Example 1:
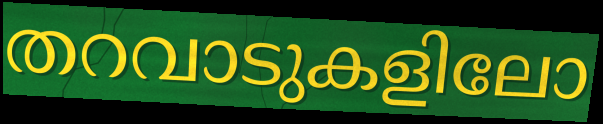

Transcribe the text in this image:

തറവാടുകളിലോ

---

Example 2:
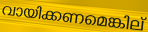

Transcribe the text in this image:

വായിക്കണമെങ്കില്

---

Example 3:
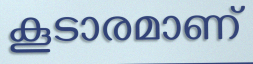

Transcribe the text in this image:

കൂടാരമാണ്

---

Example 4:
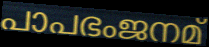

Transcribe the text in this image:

പാപഭംജനമ്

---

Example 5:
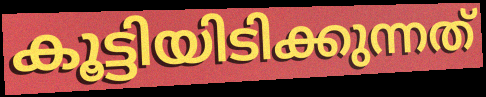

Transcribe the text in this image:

കൂട്ടിയിടിക്കുന്നത്